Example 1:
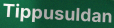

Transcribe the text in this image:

Tippusuldan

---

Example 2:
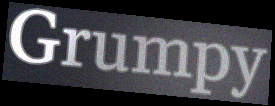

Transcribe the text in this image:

Grumpy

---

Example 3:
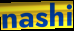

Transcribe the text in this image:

nashi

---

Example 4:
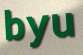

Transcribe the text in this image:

byu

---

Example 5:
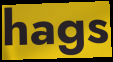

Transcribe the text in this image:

hags